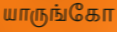
யாருங்கோ